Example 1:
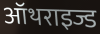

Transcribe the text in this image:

ऑथराइज्ड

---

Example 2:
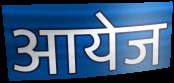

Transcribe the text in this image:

आयेज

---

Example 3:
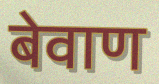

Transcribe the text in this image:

बेवाण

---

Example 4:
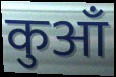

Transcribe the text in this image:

कुआँ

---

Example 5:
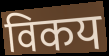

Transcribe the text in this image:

विकय